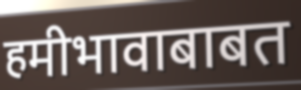
हमीभावाबाबत